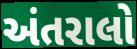
અંતરાલો